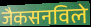
जैकसनविले